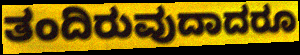
ತಂದಿರುವುದಾದರೂ